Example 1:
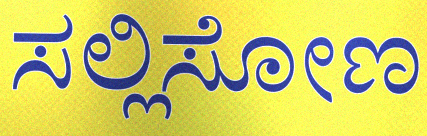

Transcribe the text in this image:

ಸಲ್ಲಿಸೋಣ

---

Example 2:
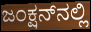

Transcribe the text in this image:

ಜಂಕ್ಷನ್‌ನಲ್ಲಿ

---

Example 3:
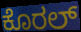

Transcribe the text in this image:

ಕೊರಲ್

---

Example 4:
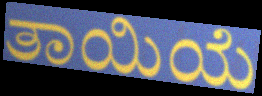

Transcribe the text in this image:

ತಾಯಿಯೆ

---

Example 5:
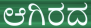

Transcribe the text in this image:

ಆಗಿರದ